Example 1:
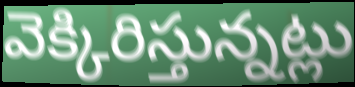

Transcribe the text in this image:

వెక్కిరిస్తున్నట్లు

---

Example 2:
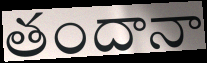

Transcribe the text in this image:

తందానా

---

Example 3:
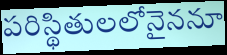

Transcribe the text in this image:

పరిస్థితులలోనైననూ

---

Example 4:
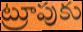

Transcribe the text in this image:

ట్రూపుకు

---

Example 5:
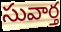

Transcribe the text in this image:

సువార్త